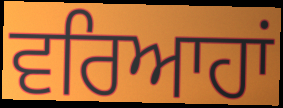
ਵਰਿਆਹਾਂ